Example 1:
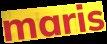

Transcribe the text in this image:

maris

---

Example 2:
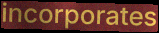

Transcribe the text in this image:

incorporates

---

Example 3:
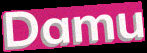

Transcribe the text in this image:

Damu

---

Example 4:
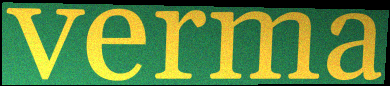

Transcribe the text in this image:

verma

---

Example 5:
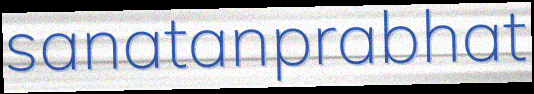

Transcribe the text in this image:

sanatanprabhat